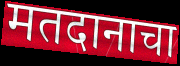
मतदानाचा